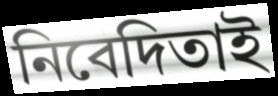
নিবেদিতাই